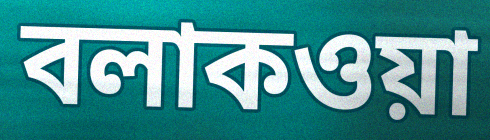
বলাকওয়া